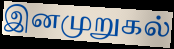
இனமுறுகல்